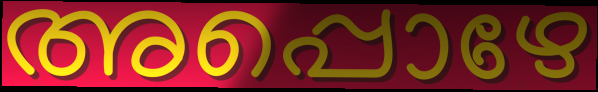
അപ്പൊഴേ